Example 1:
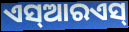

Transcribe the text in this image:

ଏସ୍ଆରଏସ୍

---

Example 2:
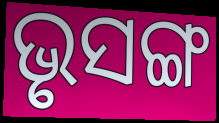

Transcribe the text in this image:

ଭୃସଙ୍ଗ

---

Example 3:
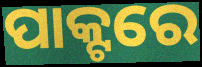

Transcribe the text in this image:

ପାକ୍ଟରେ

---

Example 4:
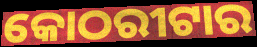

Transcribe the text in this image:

କୋଠରୀଟାର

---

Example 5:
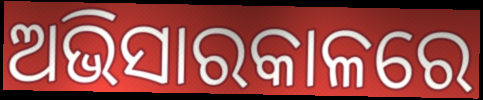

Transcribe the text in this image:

ଅଭିସାରକାଳରେ